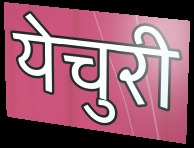
येचुरी